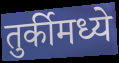
तुर्कीमध्ये